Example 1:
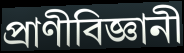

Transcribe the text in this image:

প্রাণীবিজ্ঞানী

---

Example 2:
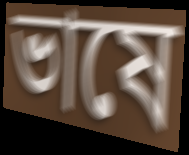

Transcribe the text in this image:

ভাষে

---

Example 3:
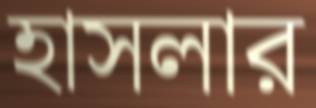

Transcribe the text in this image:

হাসলার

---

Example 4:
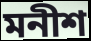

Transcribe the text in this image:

মনীশ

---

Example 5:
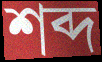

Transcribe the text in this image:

শব্দ